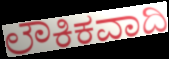
ಲೌಕಿಕವಾದಿ